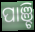
ପାଞ୍ଚି